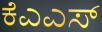
ಕೆಎಎಸ್